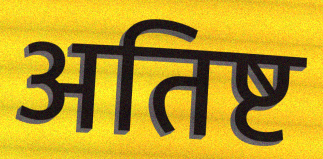
अतिष्ट